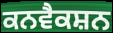
ਕਨਵੈਕਸ਼ਨ